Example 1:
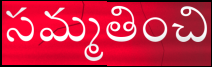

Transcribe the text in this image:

సమ్మతించి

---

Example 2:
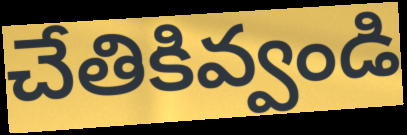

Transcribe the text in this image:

చేతికివ్వండి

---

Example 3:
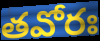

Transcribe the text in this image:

తవోరః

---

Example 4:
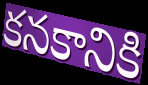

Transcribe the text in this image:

కనకానికి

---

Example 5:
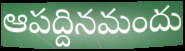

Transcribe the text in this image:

ఆపద్దినమందు